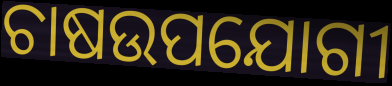
ଚାଷଉପଯୋଗୀ